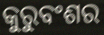
କୁରୁବଂଶର